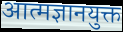
आत्मज्ञानयुक्त